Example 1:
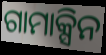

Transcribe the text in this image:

ଗାମାକ୍ସିନ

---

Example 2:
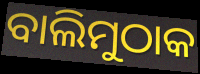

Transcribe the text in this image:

ବାଲିମୁଠାକ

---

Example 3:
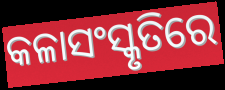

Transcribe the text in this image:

କଳାସଂସ୍କୃତିରେ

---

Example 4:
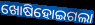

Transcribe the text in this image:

ଖୋଷିହୋଇଗଲା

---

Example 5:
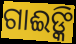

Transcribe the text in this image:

ଗାଈଙ୍କି